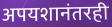
अपयशानंतरही